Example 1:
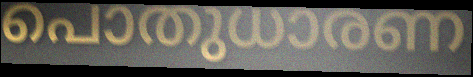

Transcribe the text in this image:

പൊതുധാരണ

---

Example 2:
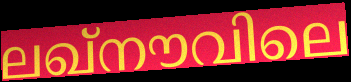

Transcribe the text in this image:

ലഖ്നൗവിലെ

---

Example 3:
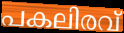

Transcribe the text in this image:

പകലിരവ്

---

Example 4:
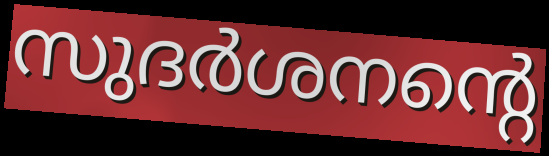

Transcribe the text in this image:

സുദർശനന്റെ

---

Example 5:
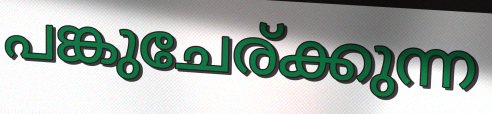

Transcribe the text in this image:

പങ്കുചേര്ക്കുന്ന